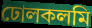
ঢোলকলমি